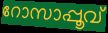
റോസാപ്പൂവ്